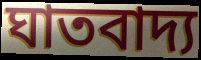
ঘাতবাদ্য